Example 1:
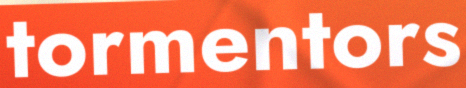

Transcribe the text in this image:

tormentors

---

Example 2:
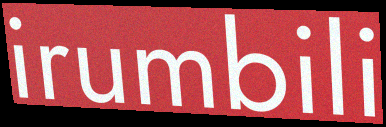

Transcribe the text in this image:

irumbili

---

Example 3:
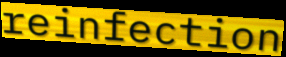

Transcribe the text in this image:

reinfection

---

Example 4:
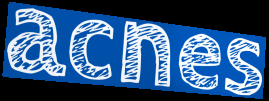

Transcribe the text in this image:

acnes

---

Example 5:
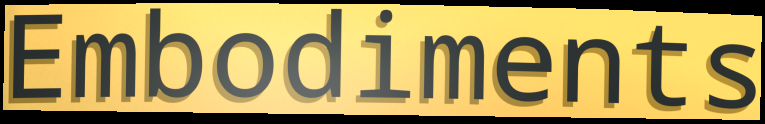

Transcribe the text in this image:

Embodiments